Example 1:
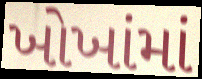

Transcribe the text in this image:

ખોખાંમાં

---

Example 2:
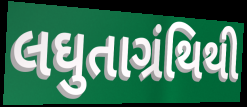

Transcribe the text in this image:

લઘુતાગ્રંથિથી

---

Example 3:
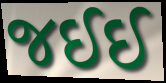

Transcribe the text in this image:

જઈઈ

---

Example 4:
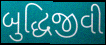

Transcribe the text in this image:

બુદ્ધિજીવી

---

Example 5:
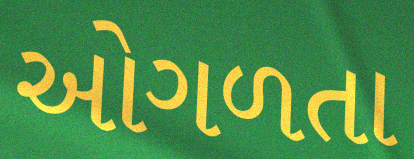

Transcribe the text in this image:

ઓગળતા